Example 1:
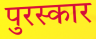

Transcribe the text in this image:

पुरस्कार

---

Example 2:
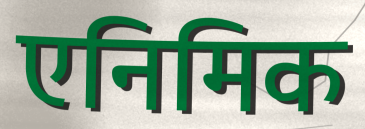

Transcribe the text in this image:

एनिमिक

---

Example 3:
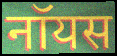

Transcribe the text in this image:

नॉयस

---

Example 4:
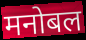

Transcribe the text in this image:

मनोबल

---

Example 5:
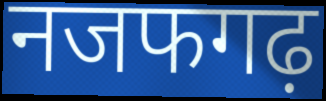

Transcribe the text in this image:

नजफगढ़